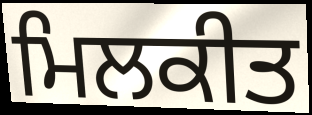
ਮਿਲਕੀਤ